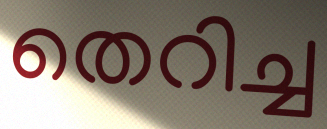
തെറിച്ച